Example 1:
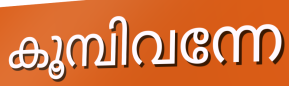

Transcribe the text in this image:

കൂമ്പിവന്നേ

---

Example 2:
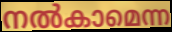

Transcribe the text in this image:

നൽകാമെന്ന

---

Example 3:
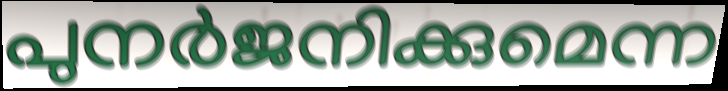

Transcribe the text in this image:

പുനർജനിക്കുമെന്ന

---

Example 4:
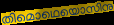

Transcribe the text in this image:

തിമൊഥെയൊസിനു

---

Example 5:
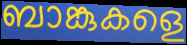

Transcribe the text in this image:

ബാങ്കുകളെ